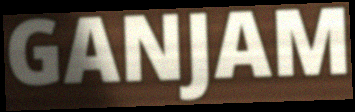
GANJAM